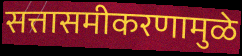
सत्तासमीकरणामुळे